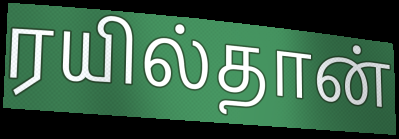
ரயில்தான்